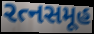
રત્નસમૂહ